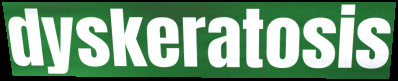
dyskeratosis